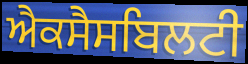
ਐਕਸੈਸਬਿਲਟੀ